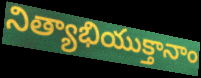
నిత్యాభియుక్తానాం